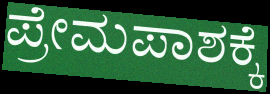
ಪ್ರೇಮಪಾಶಕ್ಕೆ